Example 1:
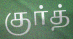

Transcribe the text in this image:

குர்த்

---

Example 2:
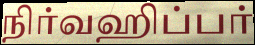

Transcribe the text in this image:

நிர்வஹிப்பர்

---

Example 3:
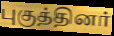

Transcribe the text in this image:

புகுத்தினர்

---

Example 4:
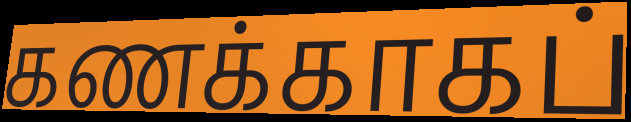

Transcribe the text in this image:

கணக்காகப்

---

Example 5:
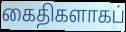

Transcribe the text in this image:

கைதிகளாகப்